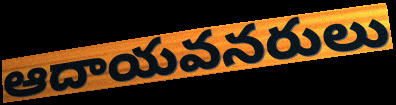
ఆదాయవనరులు